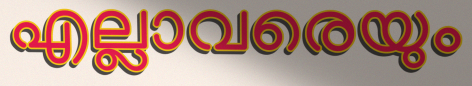
എല്ലാവരെയും